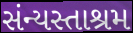
સંન્યસ્તાશ્રમ